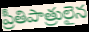
ప్రీతిపాత్రులైన